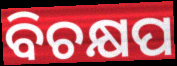
ବିଚକ୍ଷପ